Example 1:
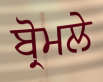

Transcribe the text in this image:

ਬ੍ਰੋਮਲੇ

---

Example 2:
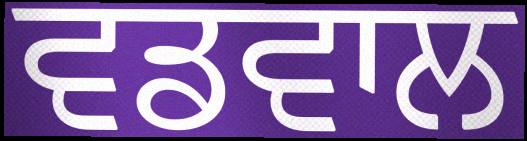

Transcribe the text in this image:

ਵਡਵਾਲ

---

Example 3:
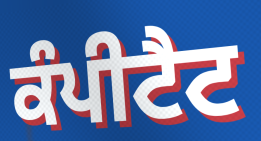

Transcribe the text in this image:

ਕੰਪੀਟੈਟ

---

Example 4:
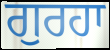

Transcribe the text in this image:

ਗੁਰਹਾ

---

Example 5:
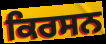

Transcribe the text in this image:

ਕਿਰਸਨ